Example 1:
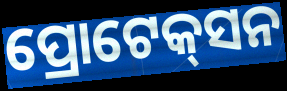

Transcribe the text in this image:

ପ୍ରୋଟେକ୍‌ସନ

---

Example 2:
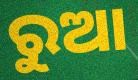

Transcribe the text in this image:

ରୁଆ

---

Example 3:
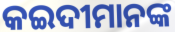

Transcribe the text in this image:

କଇଦୀମାନଙ୍କ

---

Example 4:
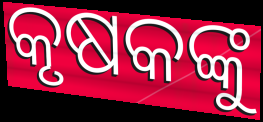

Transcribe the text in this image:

କୃଷକଙ୍କୁ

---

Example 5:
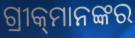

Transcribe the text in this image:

ଗ୍ରୀକ୍‌ମାନଙ୍କର